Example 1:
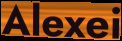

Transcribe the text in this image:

Alexei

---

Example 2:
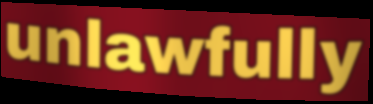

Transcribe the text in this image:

unlawfully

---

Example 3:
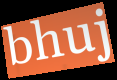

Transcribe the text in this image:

bhuj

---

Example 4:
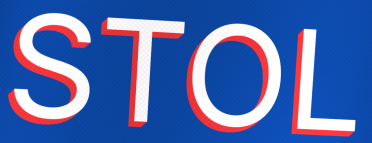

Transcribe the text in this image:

STOL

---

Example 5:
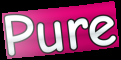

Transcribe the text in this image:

Pure